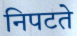
निपटते